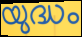
യുദ്ധം